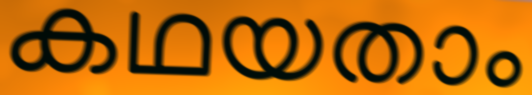
കഥയതാം